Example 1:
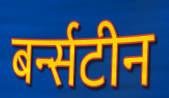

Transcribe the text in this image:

बर्न्सटीन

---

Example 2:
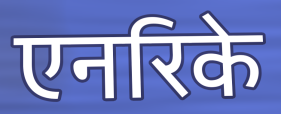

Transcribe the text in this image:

एनरिके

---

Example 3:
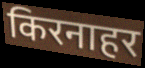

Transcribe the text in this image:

किरनाहर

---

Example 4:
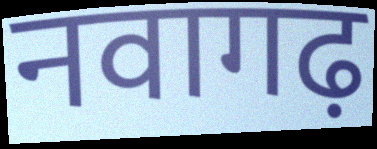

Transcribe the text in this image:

नवागढ़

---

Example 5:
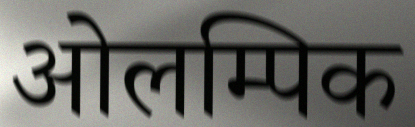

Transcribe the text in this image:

ओलम्पिक